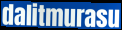
dalitmurasu